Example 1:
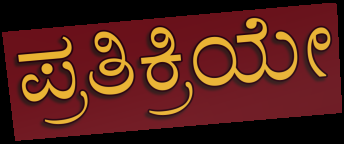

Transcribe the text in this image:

ಪ್ರತಿಕ್ರಿಯೇ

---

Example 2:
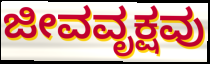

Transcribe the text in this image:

ಜೀವವೃಕ್ಷವು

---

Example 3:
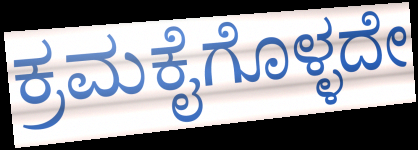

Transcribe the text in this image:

ಕ್ರಮಕೈಗೊಳ್ಳದೇ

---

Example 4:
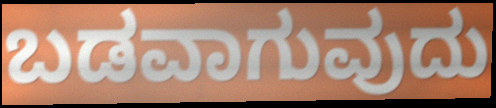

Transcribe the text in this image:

ಬಡವಾಗುವುದು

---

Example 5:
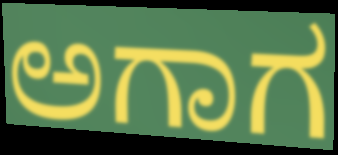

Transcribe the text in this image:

ಅಗಾಗ